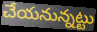
చేయనున్నట్టు